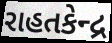
રાહતકેન્દ્ર